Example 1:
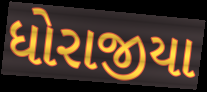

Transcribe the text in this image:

ધોરાજીયા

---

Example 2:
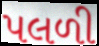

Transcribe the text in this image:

પલળી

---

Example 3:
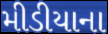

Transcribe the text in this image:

મીડીયાના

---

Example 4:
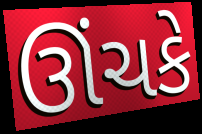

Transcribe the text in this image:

ઊંચકે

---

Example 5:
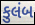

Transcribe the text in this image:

કુલંબ